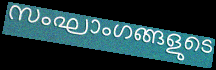
സംഘാംഗങ്ങളുടെ